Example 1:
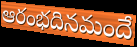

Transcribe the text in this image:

ఆరంభదినమందే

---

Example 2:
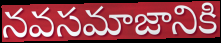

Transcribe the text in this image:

నవసమాజానికి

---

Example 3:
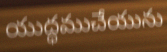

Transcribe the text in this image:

యుద్ధముచేయును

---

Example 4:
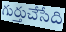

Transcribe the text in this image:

గుర్తుచేసేది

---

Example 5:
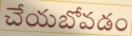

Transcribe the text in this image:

చేయబోవడం